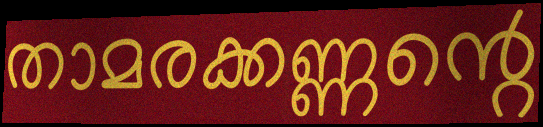
താമരക്കണ്ണന്റെ